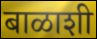
बाळाशी